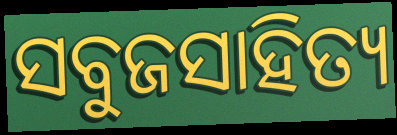
ସବୁଜସାହିତ୍ୟ